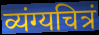
व्यंग्यचित्रं